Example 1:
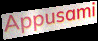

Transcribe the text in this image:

Appusami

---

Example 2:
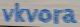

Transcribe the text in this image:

vkvora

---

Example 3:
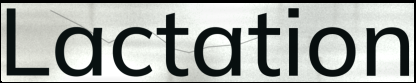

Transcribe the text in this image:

Lactation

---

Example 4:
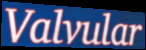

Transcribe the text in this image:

Valvular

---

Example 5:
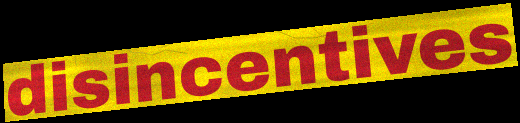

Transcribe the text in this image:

disincentives